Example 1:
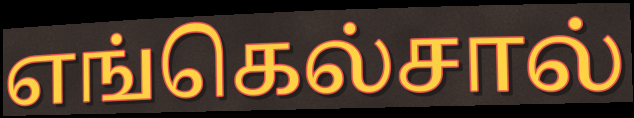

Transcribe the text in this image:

எங்கெல்சால்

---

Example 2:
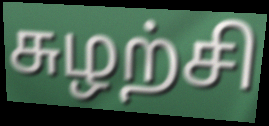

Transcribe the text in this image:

சுழற்சி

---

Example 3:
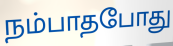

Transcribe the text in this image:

நம்பாதபோது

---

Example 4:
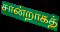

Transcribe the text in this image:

சான்றாகத்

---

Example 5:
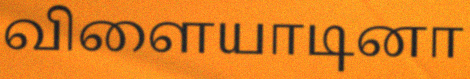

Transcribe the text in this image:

விளையாடினா